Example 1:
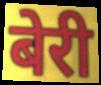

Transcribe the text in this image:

बेरी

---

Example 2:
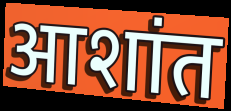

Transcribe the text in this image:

आशांत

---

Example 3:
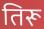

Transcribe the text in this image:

तिरू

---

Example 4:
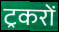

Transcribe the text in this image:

ट्रकरों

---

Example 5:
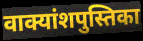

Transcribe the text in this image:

वाक्यांशपुस्तिका